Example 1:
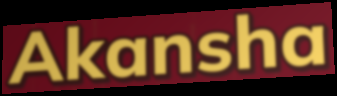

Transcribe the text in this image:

Akansha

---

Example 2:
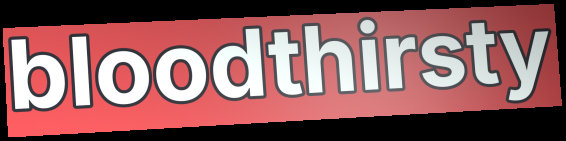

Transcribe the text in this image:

bloodthirsty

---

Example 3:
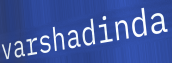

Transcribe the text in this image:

varshadinda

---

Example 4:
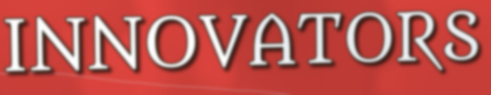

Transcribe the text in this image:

INNOVATORS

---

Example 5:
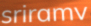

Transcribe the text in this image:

sriramv